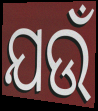
ଯଉଁ